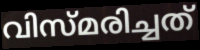
വിസ്മരിച്ചത്